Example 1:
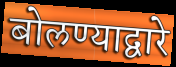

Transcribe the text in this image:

बोलण्याद्वारे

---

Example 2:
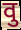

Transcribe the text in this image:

वु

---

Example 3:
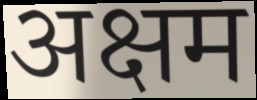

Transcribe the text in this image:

अक्षम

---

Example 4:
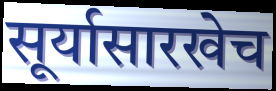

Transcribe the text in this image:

सूर्यासारखेच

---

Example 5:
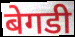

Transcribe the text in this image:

बेगडी